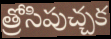
త్రోసిపుచ్చక